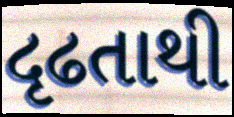
દૃઢતાથી